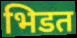
भिडत